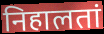
निहालतां